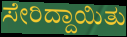
ಸೇರಿದ್ದಾಯಿತು